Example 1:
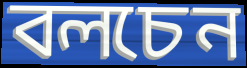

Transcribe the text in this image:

বলচেন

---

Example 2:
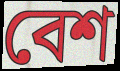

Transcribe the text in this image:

বেশ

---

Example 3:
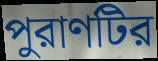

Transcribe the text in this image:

পুরাণটির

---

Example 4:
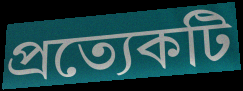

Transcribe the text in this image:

প্রত্যেকটি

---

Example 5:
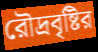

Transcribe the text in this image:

রৌদ্রবৃষ্টির